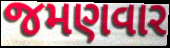
જમણવાર